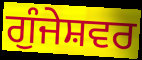
ਗੁੰਜੇਸ਼ਵਰ